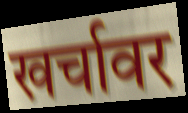
खर्चावर